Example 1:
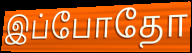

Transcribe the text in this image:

இப்போதோ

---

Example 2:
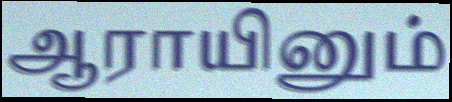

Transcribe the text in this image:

ஆராயினும்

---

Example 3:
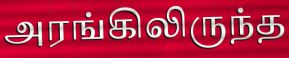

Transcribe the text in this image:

அரங்கிலிருந்த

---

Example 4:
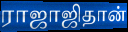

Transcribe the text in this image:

ராஜாஜிதான்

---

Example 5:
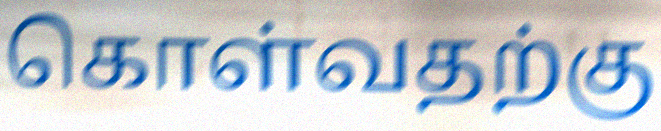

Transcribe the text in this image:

கொள்வதற்கு